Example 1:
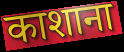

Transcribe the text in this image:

काशाना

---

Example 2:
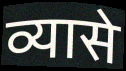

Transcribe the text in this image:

व्यासे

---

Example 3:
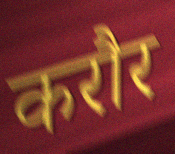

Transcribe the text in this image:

करौर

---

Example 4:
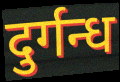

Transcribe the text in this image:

दुर्गन्ध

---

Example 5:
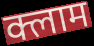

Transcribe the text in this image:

क्लाम